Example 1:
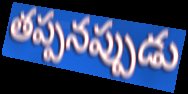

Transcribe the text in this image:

తప్పనప్పుడు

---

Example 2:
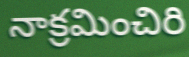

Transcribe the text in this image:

నాక్రమించిరి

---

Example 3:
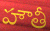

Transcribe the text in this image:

హౌతీ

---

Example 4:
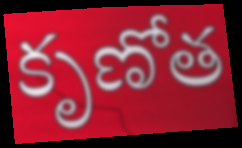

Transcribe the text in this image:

కృణోత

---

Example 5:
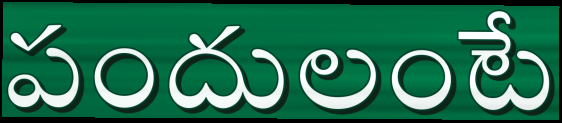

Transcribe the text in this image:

పందులంటే